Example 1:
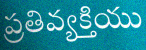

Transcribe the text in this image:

ప్రతివ్యక్తియు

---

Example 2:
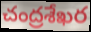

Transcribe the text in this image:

చంద్రశేఖర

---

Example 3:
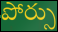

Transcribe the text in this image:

పోర్సు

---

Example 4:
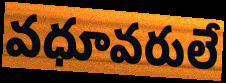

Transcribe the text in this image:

వధూవరులే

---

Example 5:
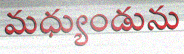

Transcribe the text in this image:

మధ్యుండును